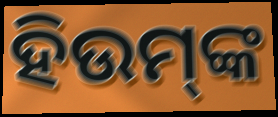
ହିଉମ୍‌ଙ୍କ